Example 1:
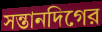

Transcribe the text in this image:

সন্তানদিগের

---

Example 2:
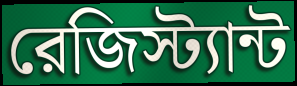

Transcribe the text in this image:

রেজিস্ট্যান্ট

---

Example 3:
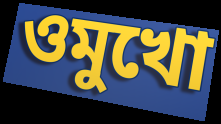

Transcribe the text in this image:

ওমুখো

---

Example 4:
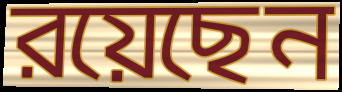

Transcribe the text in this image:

রয়েছেন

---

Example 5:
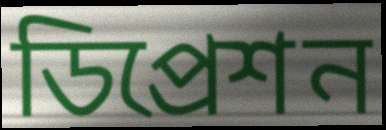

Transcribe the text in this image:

ডিপ্রেশন